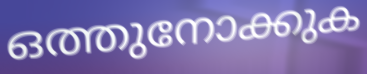
ഒത്തുനോക്കുക